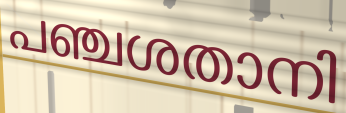
പഞ്ചശതാനി